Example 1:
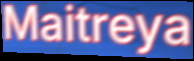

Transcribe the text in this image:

Maitreya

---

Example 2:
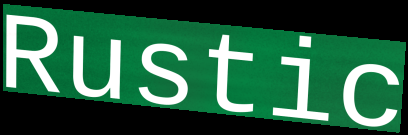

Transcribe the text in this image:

Rustic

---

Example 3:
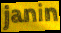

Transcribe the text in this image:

janin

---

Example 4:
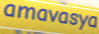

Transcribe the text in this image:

amavasya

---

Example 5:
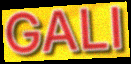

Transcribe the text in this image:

GALI